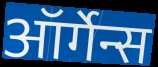
ऑर्गेन्स